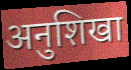
अनुशिखा